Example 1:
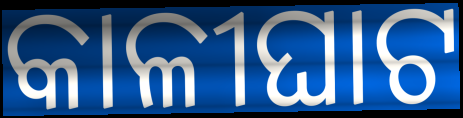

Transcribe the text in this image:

କାଳୀଘାଟ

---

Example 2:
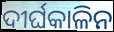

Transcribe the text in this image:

ଦୀର୍ଘକାଳିନ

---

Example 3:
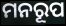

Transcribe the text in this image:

ମନରୂପ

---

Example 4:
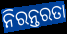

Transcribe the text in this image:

ନିରନ୍ତରତା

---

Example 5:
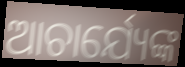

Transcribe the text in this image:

ଆଚାର୍ଯ୍ୟେଙ୍କ